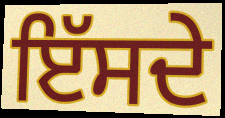
ਇੱਸਦੇ